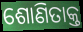
ଶୋଣିତାକ୍ତ